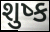
શુષ્ક